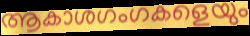
ആകാശഗംഗകളെയും